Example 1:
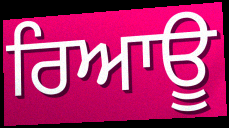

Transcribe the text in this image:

ਰਿਆਊ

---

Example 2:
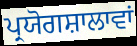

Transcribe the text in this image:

ਪ੍ਰਯੋਗਸ਼ਾਲਾਵਾਂ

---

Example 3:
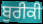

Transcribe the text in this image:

ਬੁਰੀਕੀ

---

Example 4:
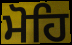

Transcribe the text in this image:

ਮੋਹਿ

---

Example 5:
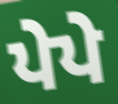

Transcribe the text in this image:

ਪੇਪੇ